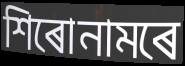
শিৰোনামৰে